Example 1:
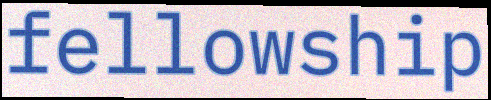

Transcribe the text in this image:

fellowship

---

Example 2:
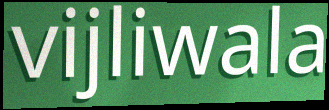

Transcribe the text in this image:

vijliwala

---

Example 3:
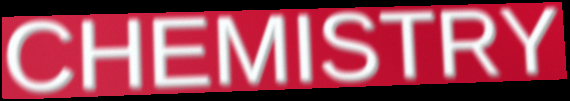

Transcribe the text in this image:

CHEMISTRY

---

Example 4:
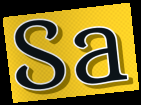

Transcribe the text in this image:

Sa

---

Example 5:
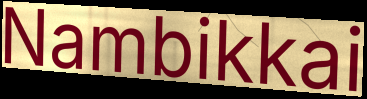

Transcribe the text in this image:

Nambikkai